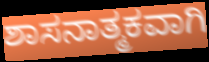
ಶಾಸನಾತ್ಮಕವಾಗಿ